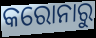
କରୋନାରୁ